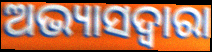
ଅଭ୍ୟାସଦ୍ୱାରା